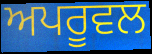
ਅਪਰੂਵਲ